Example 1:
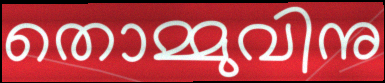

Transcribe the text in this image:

തൊമ്മുവിനു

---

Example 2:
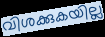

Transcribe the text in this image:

വിശക്കുകയില്ല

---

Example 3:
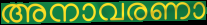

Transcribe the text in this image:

അനാവരണാ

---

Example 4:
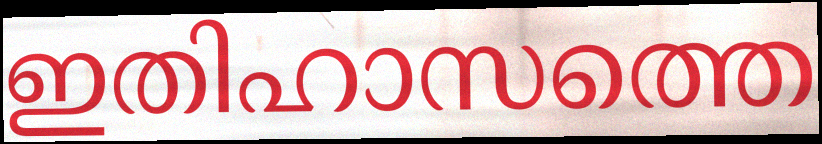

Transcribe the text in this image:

ഇതിഹാസത്തെ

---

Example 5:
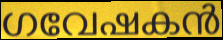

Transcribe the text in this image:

ഗവേഷകൻ